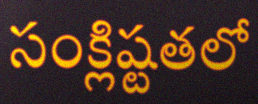
సంక్లిష్టతలో